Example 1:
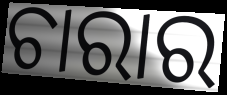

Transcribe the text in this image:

ଚାରାର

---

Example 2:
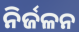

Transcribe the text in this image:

ନିର୍ଜଳନ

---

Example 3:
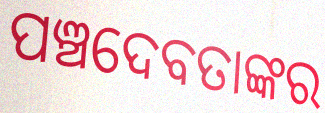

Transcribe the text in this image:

ପଞ୍ଚଦେବତାଙ୍କର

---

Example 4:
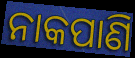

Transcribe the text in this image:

ନାକପାଣି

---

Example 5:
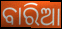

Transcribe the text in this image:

ବାରିଆ